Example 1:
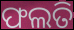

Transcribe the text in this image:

ଫଲତି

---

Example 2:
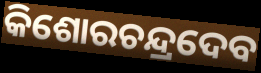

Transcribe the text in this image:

କିଶୋରଚନ୍ଦ୍ରଦେବ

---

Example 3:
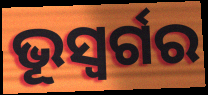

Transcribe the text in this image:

ଭୂସ୍ବର୍ଗର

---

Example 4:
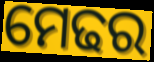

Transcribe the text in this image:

ମେଢର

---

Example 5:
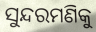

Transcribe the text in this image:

ସୁନ୍ଦରମଣିକୁ